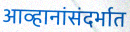
आव्हानांसंदर्भात